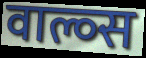
वाल्व्स